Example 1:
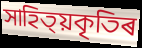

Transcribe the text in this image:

সাহিত্য়কৃতিৰ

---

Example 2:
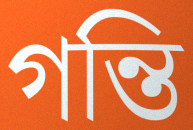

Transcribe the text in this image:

গন্তি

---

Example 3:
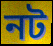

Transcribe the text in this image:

নট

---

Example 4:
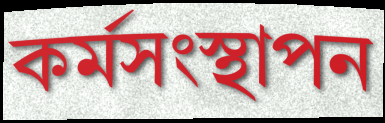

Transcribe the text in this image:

কৰ্মসংস্থাপন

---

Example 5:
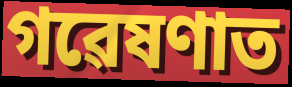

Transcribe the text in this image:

গৱেষণাত